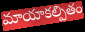
మాయాకల్పితం